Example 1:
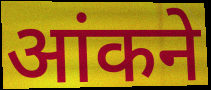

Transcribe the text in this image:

आंकने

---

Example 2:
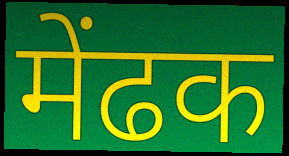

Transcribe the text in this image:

मेंढक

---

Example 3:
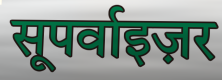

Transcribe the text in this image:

सूपर्वाइज़र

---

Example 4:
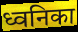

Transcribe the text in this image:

ध्वनिका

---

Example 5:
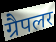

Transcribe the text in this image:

ग्रैपलर